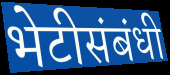
भेटीसंबंधी